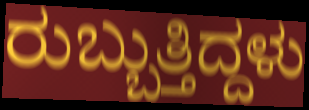
ರುಬ್ಬುತ್ತಿದ್ದಳು